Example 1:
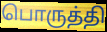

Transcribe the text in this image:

பொருத்தி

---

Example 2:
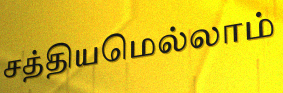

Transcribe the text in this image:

சத்தியமெல்லாம்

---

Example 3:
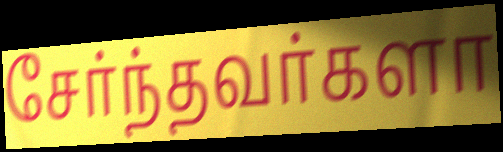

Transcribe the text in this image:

சேர்ந்தவர்களா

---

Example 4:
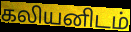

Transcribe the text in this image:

கலியனிடம்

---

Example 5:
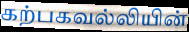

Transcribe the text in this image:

கற்பகவல்லியின்